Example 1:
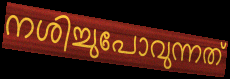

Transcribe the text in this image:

നശിച്ചുപോവുന്നത്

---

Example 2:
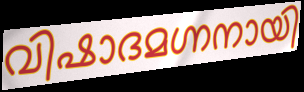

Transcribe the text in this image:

വിഷാദമഗ്നനായി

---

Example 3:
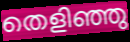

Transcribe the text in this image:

തെളിഞ്ഞു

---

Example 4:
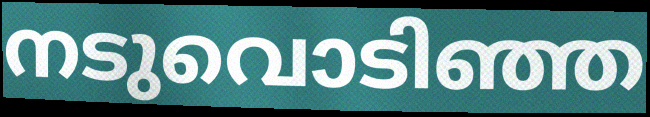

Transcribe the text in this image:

നടുവൊടിഞ്ഞ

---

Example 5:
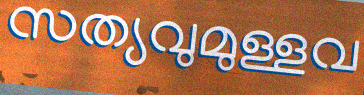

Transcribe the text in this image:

സത്യവുമുള്ളവ